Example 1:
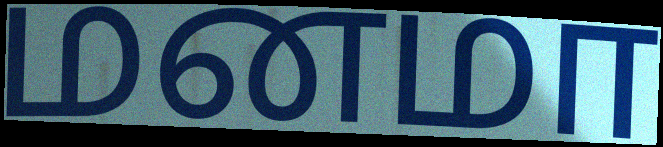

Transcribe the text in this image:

மனமா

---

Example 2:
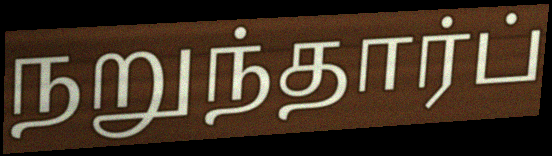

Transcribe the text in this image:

நறுந்தார்ப்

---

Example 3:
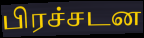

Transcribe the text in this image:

பிரச்சடன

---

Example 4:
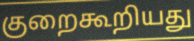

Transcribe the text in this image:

குறைகூறியது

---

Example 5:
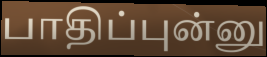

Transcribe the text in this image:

பாதிப்புன்னு